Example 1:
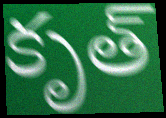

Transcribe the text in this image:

కృత్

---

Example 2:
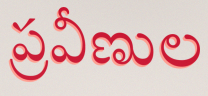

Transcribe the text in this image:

ప్రవీణుల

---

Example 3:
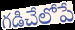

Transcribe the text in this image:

గడిచేలోపే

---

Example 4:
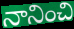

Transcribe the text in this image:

నానించి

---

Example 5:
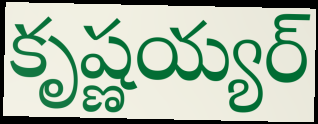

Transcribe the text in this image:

కృష్ణయ్యర్